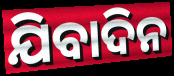
ଯିବାଦିନ